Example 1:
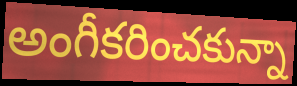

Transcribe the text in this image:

అంగీకరించకున్నా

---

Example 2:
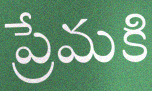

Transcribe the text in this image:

ప్రేమకి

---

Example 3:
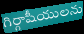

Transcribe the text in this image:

గిర్గాషీయులను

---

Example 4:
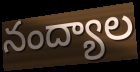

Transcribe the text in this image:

నంద్యాల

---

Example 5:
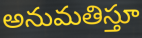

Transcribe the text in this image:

అనుమతిస్తూ